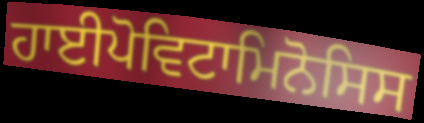
ਹਾਈਪੋਵਿਟਾਮਿਨੋਸਿਸ